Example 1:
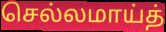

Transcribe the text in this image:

செல்லமாய்த்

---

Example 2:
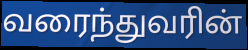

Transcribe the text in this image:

வரைந்துவரின்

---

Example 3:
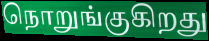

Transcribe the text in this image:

நொறுங்குகிறது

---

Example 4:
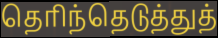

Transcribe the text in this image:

தெரிந்தெடுத்துத்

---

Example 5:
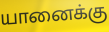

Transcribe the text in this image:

யானைக்கு